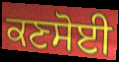
ਕਣਸੋਈ